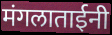
मंगलाताईनी